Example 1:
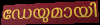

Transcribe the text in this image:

ഡേയുമായി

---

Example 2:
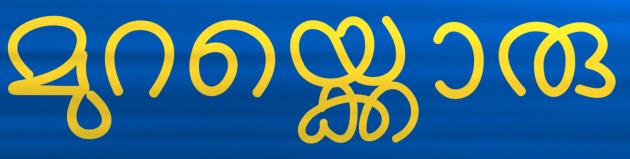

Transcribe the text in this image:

മുറയ്ക്കൊരു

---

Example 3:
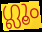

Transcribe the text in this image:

ഗ്ലൂം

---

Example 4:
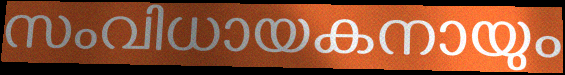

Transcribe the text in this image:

സംവിധായകനായും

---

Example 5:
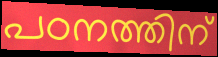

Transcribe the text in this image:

പഠനത്തിന്